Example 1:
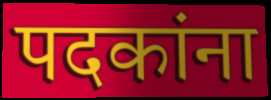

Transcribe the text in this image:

पदकांना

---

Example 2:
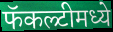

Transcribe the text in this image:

फॅकल्टीमध्ये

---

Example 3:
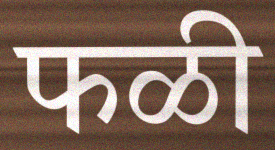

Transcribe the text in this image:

फळी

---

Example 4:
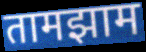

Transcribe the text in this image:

तामझाम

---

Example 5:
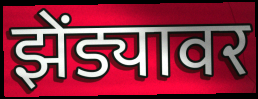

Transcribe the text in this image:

झेंड्यावर